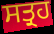
ਸਤ੍ਰਹ